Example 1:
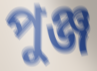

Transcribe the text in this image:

পুঞ্জ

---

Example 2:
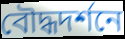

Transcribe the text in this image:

বৌদ্ধদর্শনে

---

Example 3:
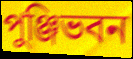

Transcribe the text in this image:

পুঞ্জিভবন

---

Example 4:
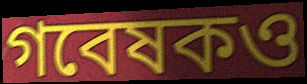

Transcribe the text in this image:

গবেষকও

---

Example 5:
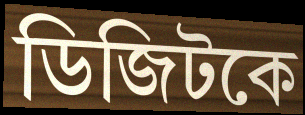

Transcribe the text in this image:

ডিজিটকে